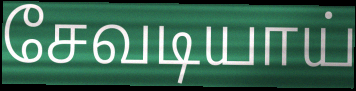
சேவடியாய்